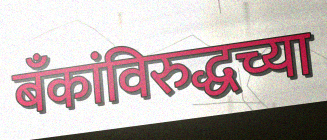
बँकांविरुद्धच्या